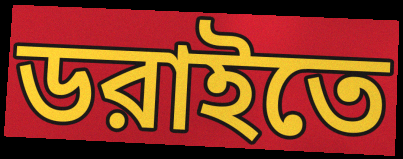
ডরাইতে